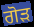
ਗੋੜ